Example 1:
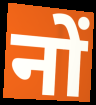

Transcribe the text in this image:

नों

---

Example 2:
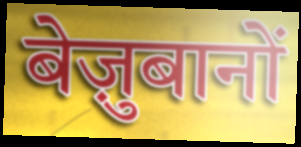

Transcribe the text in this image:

बेज़ुबानों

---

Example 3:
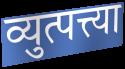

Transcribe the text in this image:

व्युत्पत्त्या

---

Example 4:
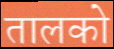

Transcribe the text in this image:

तालको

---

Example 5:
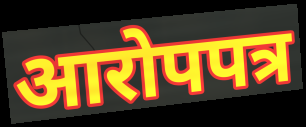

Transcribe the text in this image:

आरोपपत्र